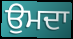
ਉਮਦਾ